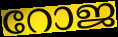
റോജ